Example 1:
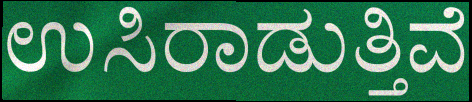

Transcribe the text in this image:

ಉಸಿರಾಡುತ್ತಿವೆ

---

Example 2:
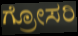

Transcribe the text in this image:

ಗ್ರೋಸರಿ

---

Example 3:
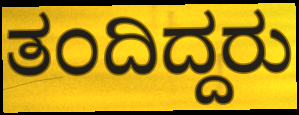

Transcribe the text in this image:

ತಂದಿದ್ದರು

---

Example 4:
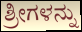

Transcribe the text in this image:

ಶ್ರೀಗಳನ್ನು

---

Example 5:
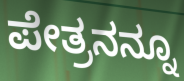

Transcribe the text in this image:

ಪೇತ್ರನನ್ನೂ